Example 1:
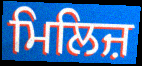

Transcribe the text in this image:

ਮਿਲਿਜ਼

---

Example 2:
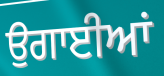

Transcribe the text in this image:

ਉਗਾਈਆਂ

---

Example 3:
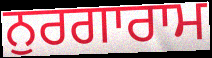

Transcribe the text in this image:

ਨੁਰਗਾਰਾਮ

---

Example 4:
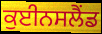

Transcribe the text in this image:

ਕੁਈਨਸਲੈਂਡ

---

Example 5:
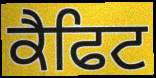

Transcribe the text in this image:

ਕੈਫਿਟ